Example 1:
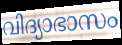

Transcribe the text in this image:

വിദ്യാഭാസം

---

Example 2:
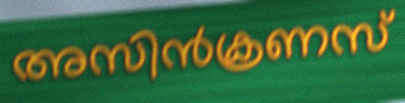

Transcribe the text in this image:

അസിൻക്രണസ്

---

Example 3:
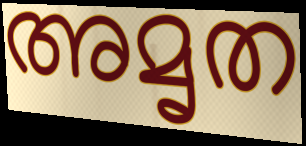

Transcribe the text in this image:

അമൃത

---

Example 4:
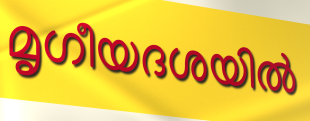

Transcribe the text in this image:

മൃഗീയദശയിൽ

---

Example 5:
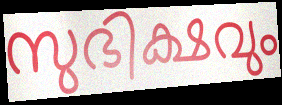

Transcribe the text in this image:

സുഭിക്ഷവും